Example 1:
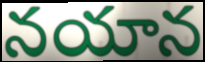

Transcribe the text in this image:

నయాన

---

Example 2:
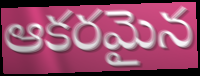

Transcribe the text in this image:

ఆకరమైన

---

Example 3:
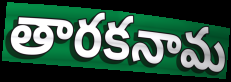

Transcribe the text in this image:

తారకనామ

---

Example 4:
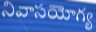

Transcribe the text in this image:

నివాసయోగ్య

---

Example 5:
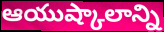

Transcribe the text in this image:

ఆయుష్కాలాన్ని